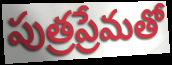
పుత్రప్రేమతో